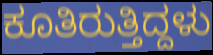
ಕೂತಿರುತ್ತಿದ್ದಳು